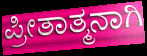
ಪ್ರೀತಾತ್ಮನಾಗಿ